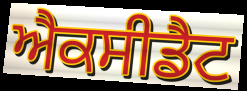
ਐਕਸੀਡੈਟ